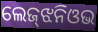
ଲେଜ୍‌ଝନିଓଭ